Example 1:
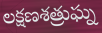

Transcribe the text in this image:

లక్షణశత్రుఘ్న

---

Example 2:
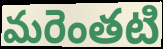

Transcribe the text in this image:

మరెంతటి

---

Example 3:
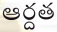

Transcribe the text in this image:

ఆర్దత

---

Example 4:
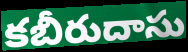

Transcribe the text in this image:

కబీరుదాసు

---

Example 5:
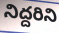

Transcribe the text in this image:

నిద్దరిని